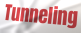
Tunneling